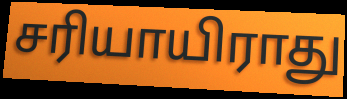
சரியாயிராது